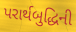
પરાર્થબુદ્ધિની